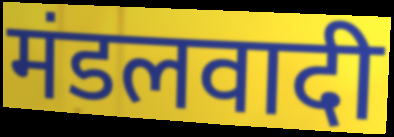
मंडलवादी